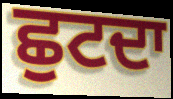
ਛੁਟਦਾ